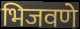
भिजवणे